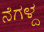
ನೆಗಳ್ದ